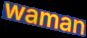
waman